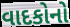
વાદકોનો